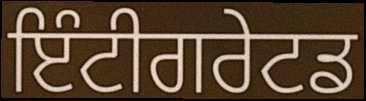
ਇੰਟੀਗਰੇਟਡ